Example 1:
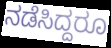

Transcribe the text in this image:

ನಡೆಸಿದ್ದರೂ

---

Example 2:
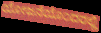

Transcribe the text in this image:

ಯೋಜನೆಯೊಂದರಲ್ಲಿ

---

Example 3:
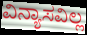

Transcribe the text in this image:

ವಿನ್ಯಾಸವಿಲ್ಲ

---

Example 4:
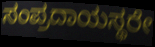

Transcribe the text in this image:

ಸಂಪ್ರದಾಯಸ್ಥರೇ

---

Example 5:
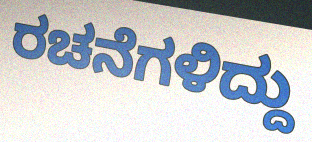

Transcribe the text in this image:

ರಚನೆಗಳಿದ್ದು